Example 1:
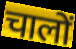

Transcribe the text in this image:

चालों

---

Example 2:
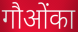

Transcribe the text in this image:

गौओंका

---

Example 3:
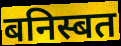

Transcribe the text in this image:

बनिस्बत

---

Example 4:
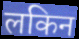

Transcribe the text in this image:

लकिन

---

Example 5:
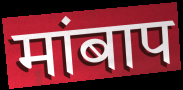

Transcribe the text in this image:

मांबाप